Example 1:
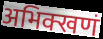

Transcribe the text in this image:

अभिक्खणं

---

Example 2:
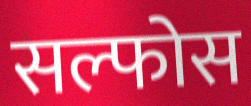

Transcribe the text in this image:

सल्फोस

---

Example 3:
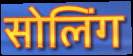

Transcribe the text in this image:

सोलिंग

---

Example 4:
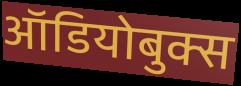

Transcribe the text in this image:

ऑडियोबुक्स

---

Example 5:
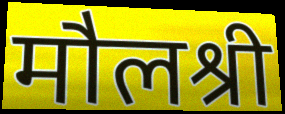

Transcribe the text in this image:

मौलश्री